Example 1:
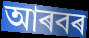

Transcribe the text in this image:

আৰবৰ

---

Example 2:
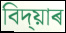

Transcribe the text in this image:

বিদ্য়াৰ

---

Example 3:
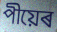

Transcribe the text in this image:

পীয়েৰ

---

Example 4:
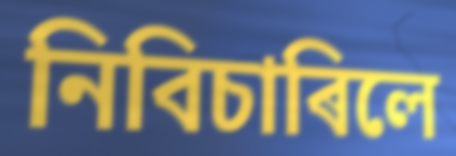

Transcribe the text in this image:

নিবিচাৰিলে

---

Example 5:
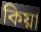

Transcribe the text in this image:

কিয়া